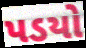
પડયો